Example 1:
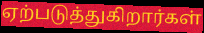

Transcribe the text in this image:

ஏற்படுத்துகிறார்கள்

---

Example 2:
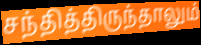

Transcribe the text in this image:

சந்தித்திருந்தாலும்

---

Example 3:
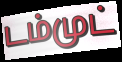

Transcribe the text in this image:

டம்முட்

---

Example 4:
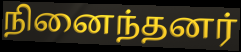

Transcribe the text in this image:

நினைந்தனர்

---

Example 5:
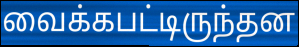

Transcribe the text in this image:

வைக்கபட்டிருந்தன